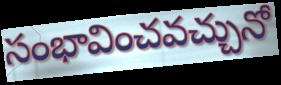
సంభావించవచ్చునో